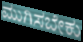
ಮುಗಿಸಬೇಕು